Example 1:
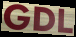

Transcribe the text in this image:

GDL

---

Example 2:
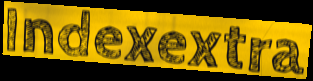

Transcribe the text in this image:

Indexextra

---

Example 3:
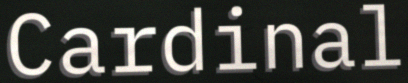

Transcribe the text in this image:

Cardinal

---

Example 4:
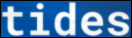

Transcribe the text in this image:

tides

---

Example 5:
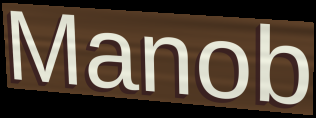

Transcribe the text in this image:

Manob